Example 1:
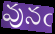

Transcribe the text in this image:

వునఁ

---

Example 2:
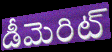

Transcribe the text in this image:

డీమెరిట్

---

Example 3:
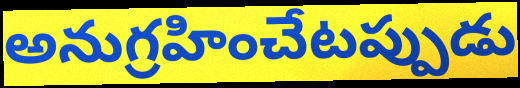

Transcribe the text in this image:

అనుగ్రహించేటప్పుడు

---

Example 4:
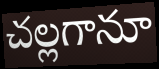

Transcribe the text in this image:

చల్లగానూ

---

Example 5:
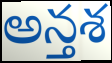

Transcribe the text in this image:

అన్తశ